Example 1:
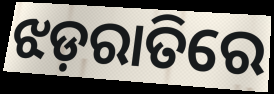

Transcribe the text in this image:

ଝଡ଼ରାତିରେ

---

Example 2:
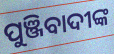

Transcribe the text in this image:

ପୁଞ୍ଜିବାଦୀଙ୍କ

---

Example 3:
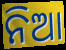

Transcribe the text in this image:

ନିଆ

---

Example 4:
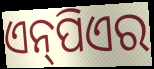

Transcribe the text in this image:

ଏନ୍‌ପିଏର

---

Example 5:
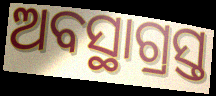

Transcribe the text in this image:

ଅବସ୍ଥାଗ୍ରସ୍ତ